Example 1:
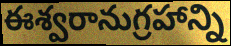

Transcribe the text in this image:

ఈశ్వరానుగ్రహాన్ని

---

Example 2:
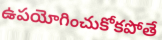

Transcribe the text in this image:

ఉపయోగించుకోకపోతే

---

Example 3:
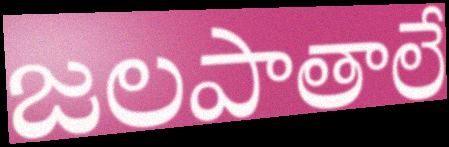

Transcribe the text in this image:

జలపాతాలే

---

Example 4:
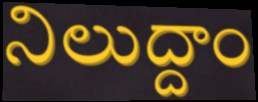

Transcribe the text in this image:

నిలుద్దాం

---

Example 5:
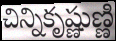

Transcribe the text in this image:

చిన్నికృష్ణుణ్ణి